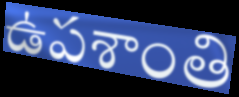
ఉపశాంతి